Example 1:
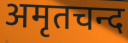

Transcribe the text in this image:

अमृतचन्द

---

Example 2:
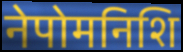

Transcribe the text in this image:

नेपोमनिशि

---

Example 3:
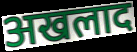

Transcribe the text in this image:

अखलाद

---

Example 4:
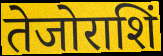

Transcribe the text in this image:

तेजोराशिं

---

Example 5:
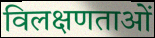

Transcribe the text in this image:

विलक्षणताओं